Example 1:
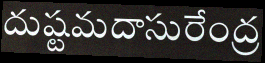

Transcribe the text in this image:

దుష్టమదాసురేంద్ర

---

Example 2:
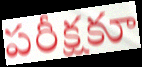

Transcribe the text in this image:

పరీక్షకూ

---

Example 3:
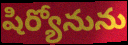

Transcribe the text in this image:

షిర్యోనును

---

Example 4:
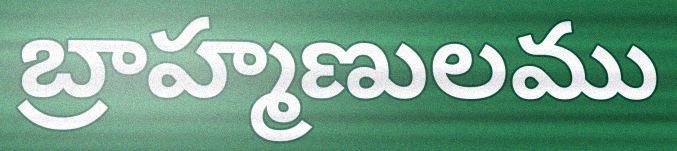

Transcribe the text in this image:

బ్రాహ్మణులము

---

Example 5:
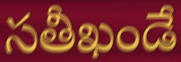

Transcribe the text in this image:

సతీఖండే